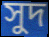
সুদ